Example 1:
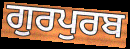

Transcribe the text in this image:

ਗੁਰਪੁਰਬ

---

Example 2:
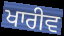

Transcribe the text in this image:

ਖਾਰੀਵ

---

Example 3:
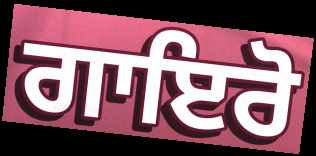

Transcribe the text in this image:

ਗਾਇਰੋ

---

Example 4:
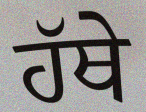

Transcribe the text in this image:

ਹੱਥੇ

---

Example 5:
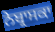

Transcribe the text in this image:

ਨੇਬ੍ਰਾਸਕਾ